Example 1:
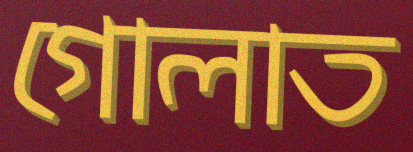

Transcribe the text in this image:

গোলাত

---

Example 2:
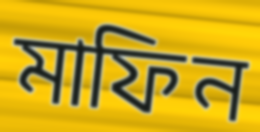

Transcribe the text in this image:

মাফিন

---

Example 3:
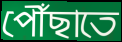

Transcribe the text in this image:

পৌঁছাতে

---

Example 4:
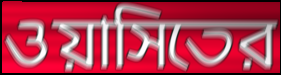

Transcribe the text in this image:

ওয়াসিতের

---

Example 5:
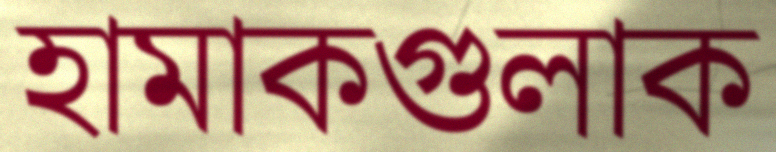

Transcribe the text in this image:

হামাকগুলাক